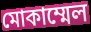
মোকাম্মেল